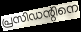
പ്രസിഡന്റിനെ